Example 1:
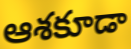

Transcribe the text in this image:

ఆశకూడా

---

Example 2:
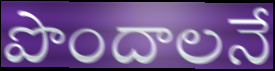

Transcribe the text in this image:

పొందాలనే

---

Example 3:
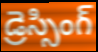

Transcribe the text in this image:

డ్రెస్సింగ్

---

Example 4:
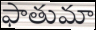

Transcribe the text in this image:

ఫాతుమా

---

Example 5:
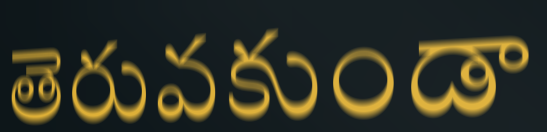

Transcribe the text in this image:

తెరువకుండా